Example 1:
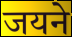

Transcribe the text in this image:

जयने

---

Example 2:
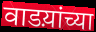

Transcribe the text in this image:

वाडय़ांच्या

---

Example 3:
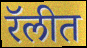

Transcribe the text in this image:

रॅलीत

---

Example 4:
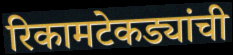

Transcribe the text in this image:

रिकामटेकड्यांची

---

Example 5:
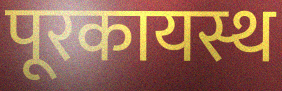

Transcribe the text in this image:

पूरकायस्थ